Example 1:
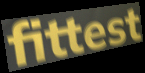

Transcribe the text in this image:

fittest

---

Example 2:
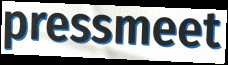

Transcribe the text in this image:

pressmeet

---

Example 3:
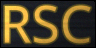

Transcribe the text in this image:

RSC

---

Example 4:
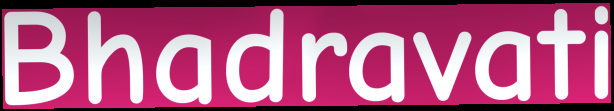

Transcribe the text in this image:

Bhadravati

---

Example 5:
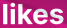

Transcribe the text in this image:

likes